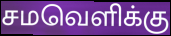
சமவெளிக்கு